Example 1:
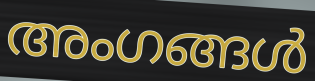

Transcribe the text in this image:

അംഗങ്ങൾ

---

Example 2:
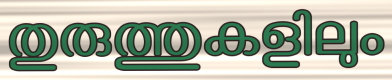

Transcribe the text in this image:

തുരുത്തുകളിലും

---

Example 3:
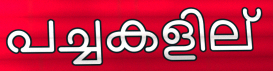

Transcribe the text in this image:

പച്ചകളില്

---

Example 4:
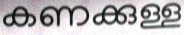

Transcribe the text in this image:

കണക്കുള്ള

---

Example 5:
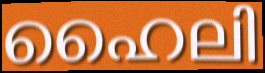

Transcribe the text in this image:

ഹൈലി